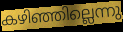
കഴിഞ്ഞില്ലെന്നു